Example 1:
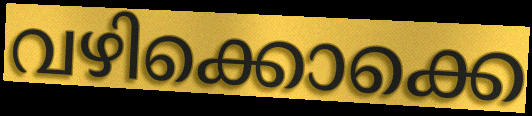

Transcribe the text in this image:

വഴിക്കൊക്കെ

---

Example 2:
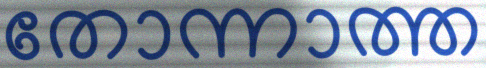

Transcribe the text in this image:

തോന്നാത്ത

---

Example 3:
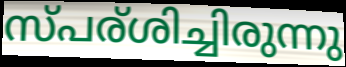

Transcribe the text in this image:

സ്പര്ശിച്ചിരുന്നു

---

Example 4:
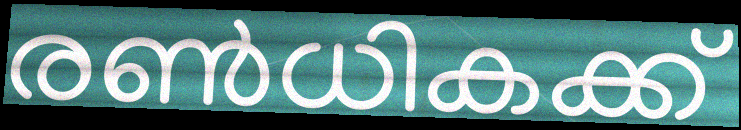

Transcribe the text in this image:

രൺധികക്ക്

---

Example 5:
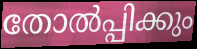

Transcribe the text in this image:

തോൽപ്പിക്കും